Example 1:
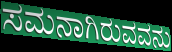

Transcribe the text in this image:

ಸಮನಾಗಿರುವವನು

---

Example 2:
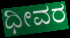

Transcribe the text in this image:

ಧೀವರ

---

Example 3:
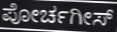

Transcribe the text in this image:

ಪೋರ್ಚಗೀಸ್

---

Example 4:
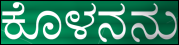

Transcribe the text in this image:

ಕೊಳನನು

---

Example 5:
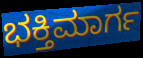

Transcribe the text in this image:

ಭಕ್ತಿಮಾರ್ಗ